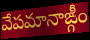
వేపమానాఙ్గీం